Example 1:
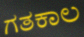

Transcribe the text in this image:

ಗತಕಾಲ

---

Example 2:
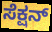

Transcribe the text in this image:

ಸೆಕ್ಷನ್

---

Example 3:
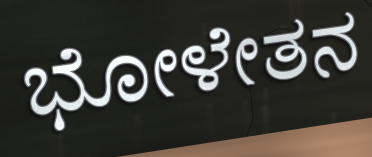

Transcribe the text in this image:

ಭೋಳೇತನ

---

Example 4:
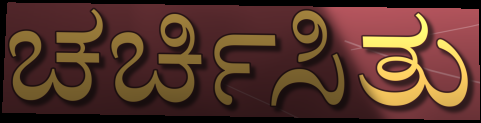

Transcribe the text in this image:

ಚರ್ಚಿಸಿತು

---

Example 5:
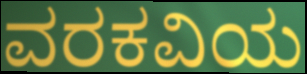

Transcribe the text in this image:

ವರಕವಿಯ